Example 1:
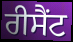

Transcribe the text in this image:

ਰੀਸੈਂਟ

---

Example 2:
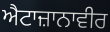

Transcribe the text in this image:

ਐਟਾਜ਼ਾਨਾਵੀਰ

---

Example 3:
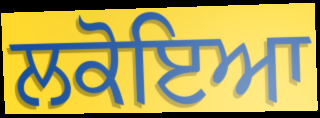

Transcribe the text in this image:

ਲਕੋਇਆ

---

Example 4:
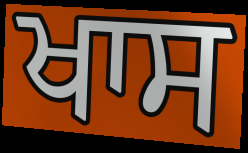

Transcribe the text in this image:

ਖਾਸ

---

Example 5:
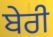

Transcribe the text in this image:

ਬੇਰੀ